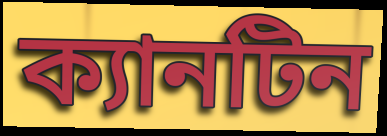
ক্যানটিন